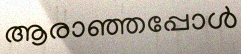
ആരാഞ്ഞപ്പോൾ